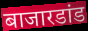
बाजारडांड